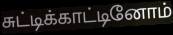
சுட்டிக்காட்டினோம்